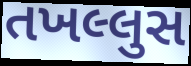
તખલ્લુસ